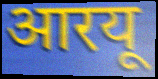
आरयू